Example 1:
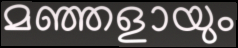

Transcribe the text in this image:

മഞ്ഞളായും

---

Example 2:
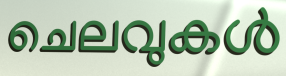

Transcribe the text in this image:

ചെലവുകൾ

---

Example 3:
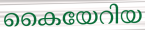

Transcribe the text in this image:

കൈയേറിയ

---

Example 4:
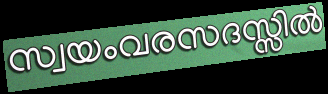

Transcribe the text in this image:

സ്വയംവരസദസ്സിൽ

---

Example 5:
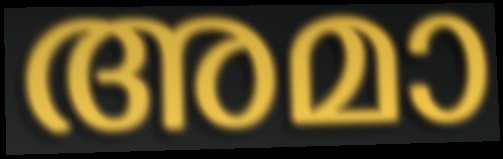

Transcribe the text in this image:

അമാ